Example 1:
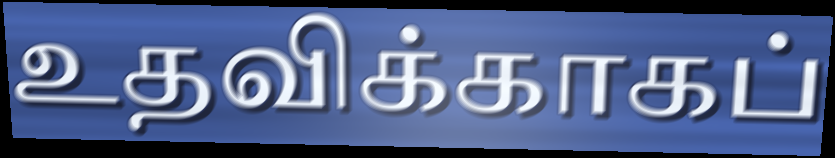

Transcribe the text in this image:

உதவிக்காகப்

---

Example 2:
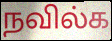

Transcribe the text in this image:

நவில்க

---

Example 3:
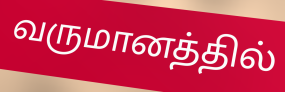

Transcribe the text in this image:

வருமானத்தில்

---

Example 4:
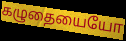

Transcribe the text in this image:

கழுதையையோ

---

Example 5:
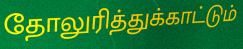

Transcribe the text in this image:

தோலுரித்துக்காட்டும்